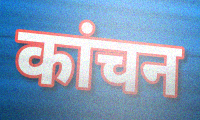
कांचन